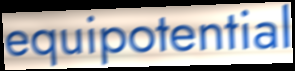
equipotential